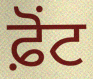
ਫ਼ੋਂਟ